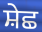
ਸ਼ੇਛ